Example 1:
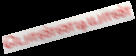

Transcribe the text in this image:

பொன்னடியான்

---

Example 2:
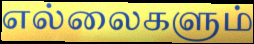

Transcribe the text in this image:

எல்லைகளும்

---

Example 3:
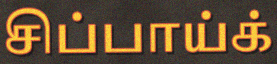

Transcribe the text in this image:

சிப்பாய்க்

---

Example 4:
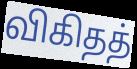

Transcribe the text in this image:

விகிதத்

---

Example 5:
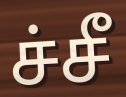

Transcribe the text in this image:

ச்சீ